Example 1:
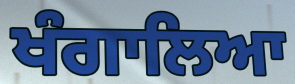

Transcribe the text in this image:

ਖੰਗਾਲਿਆ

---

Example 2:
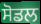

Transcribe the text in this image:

ਸੋਡਲ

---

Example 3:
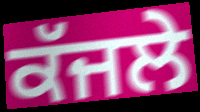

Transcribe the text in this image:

ਕੱਜਲੇ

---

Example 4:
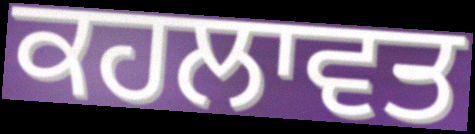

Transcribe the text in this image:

ਕਹਲਾਵਤ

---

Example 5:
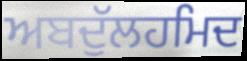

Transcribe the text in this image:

ਅਬਦੁੱਲਹਮਿਦ